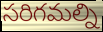
సరిగమల్ని